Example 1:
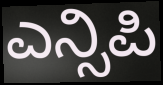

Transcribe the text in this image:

ಎನ್ಸಿಪಿ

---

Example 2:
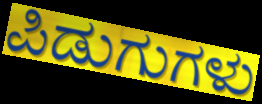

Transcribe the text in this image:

ಪಿಡುಗುಗಳು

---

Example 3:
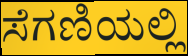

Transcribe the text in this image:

ಸೆಗಣಿಯಲ್ಲಿ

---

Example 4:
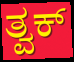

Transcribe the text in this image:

ತ್ವಕ್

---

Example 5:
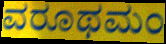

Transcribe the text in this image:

ವರೂಥಮಂ